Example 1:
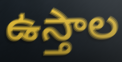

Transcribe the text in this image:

ఉస్తాల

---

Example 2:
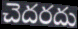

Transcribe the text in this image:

చెదరదు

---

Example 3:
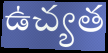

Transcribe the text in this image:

ఉచ్యత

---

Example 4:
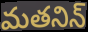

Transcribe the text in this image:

మతనిన్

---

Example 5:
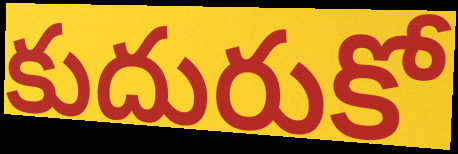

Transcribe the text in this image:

కుదురుకో